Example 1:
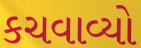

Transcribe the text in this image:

કચવાવ્યો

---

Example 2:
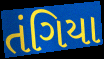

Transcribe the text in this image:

તંગિયા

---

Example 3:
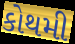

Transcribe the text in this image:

કોથમી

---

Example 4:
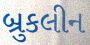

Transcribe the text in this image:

બ્રુકલીન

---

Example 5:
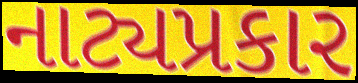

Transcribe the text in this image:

નાટ્યપ્રકાર